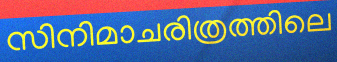
സിനിമാചരിത്രത്തിലെ